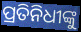
ପ୍ରତିନିଧୀଙ୍କୁ